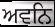
ਅਵਨਿ